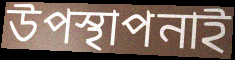
উপস্থাপনাই